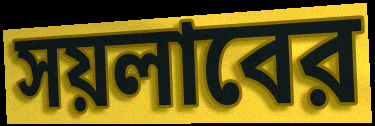
সয়লাবের